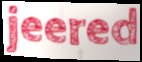
jeered